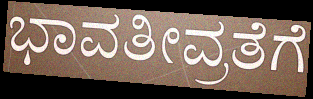
ಭಾವತೀವ್ರತೆಗೆ